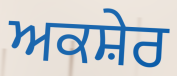
ਅਕਸ਼ੇਰ